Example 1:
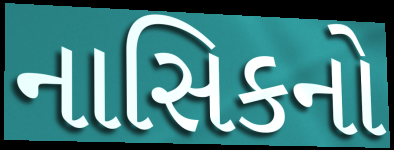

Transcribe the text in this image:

નાસિકનો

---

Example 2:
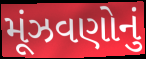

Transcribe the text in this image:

મૂંઝવણોનું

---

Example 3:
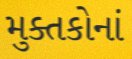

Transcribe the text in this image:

મુક્તકોનાં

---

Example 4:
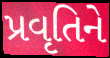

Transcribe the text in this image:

પ્રવૃતિને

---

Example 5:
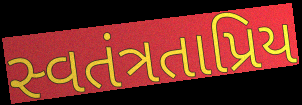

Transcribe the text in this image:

સ્વતંત્રતાપ્રિય